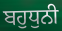
ਬਹੁਧੁਨੀ